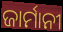
ଜାର୍ମାନୀ